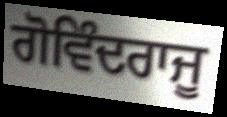
ਗੋਵਿੰਦਰਾਜੂ